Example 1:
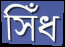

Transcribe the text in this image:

সিঁধ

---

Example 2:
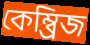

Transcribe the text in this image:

কেম্ব্রিজ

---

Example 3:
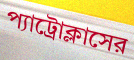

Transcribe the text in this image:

প্যাট্রোক্লাসের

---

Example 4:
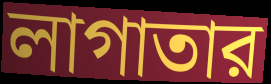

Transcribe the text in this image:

লাগাতার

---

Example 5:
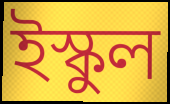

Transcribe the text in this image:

ইস্কুল